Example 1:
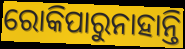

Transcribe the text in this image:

ରୋକିପାରୁନାହାନ୍ତି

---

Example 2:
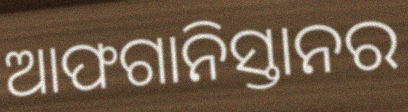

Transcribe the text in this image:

ଆଫଗାନିସ୍ତାନର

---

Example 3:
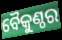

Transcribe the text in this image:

ବୈକୁଣ୍ଠର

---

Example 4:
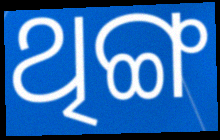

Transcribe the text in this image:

ଥିଙ୍ଗ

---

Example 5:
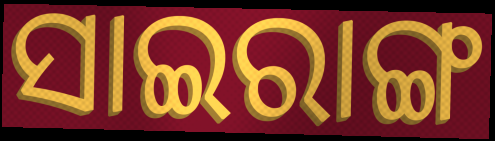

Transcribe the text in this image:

ସାଇରାଙ୍ଗ